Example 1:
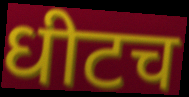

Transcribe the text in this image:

धीटच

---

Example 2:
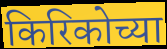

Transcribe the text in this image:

किरिकोच्या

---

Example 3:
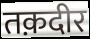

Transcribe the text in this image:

तक़दीर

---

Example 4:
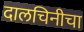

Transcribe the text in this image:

दालचिनीचा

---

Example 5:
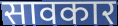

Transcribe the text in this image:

सावकार